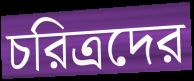
চরিত্রদের